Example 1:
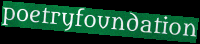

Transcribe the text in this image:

poetryfoundation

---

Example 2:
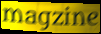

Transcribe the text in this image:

magzine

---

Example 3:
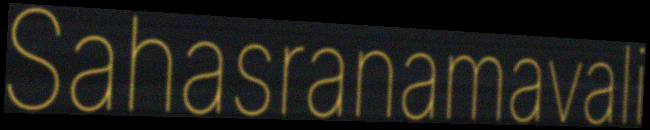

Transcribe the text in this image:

Sahasranamavali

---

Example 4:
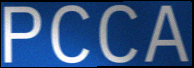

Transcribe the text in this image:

PCCA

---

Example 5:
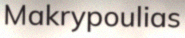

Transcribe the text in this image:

Makrypoulias